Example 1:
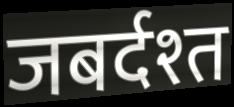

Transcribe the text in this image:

जबर्दश्त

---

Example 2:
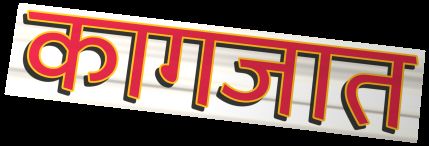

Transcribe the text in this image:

कागजात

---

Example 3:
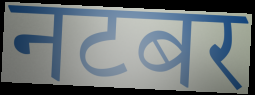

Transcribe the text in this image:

नटबर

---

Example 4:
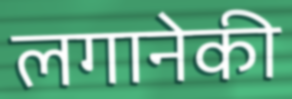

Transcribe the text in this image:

लगानेकी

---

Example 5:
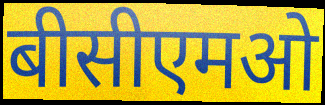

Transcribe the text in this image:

बीसीएमओ